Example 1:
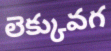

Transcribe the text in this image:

లెక్కువగ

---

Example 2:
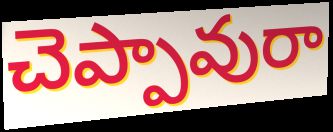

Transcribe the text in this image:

చెప్పావురా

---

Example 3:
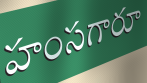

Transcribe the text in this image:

హంసగారూ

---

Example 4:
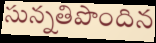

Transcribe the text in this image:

సున్నతిపొందిన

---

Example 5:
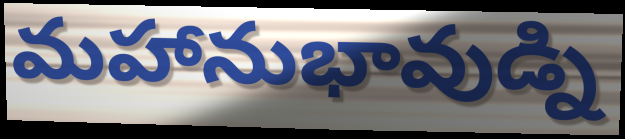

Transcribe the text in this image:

మహానుభావుడ్ని